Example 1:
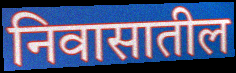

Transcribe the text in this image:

निवासातील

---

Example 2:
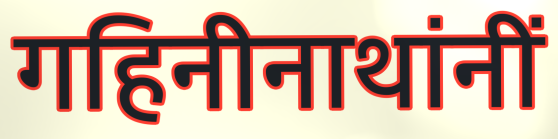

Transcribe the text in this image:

गहिनीनाथांनीं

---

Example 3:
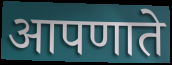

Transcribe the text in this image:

आपणाते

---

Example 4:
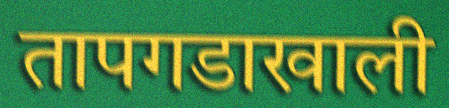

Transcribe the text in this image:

तापगडाखाली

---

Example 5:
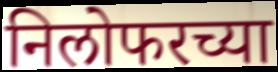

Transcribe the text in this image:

निलोफरच्या